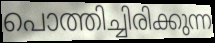
പൊത്തിച്ചിരിക്കുന്ന